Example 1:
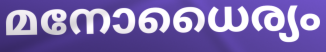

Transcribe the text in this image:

മനോധൈര്യം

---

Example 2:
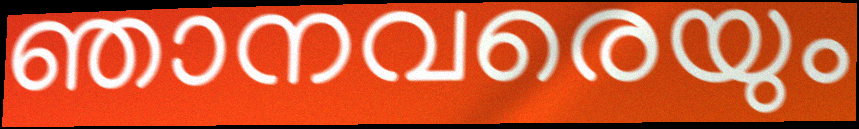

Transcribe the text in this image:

ഞാനവരെയും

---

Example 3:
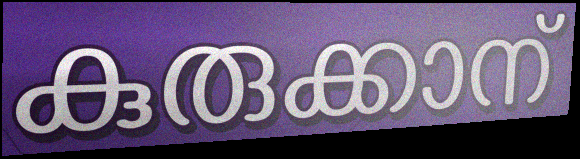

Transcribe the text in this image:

കുരുക്കാന്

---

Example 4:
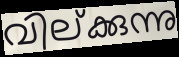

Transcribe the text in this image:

വില്ക്കുന്നു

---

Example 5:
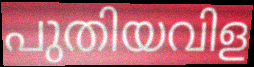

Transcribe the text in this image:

പുതിയവിള